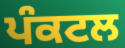
ਪੰਕਟਲ